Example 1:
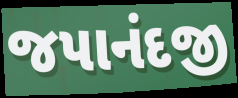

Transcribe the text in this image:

જપાનંદજી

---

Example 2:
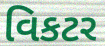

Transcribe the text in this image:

વિકટર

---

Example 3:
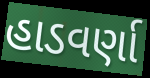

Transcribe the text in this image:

હાડવર્ણા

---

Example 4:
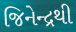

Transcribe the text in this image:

જિનેન્દ્રથી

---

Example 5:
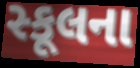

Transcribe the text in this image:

સ્કૂલના